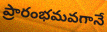
ప్రారంభమవగానే